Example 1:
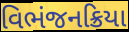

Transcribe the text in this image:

વિભંજનક્રિયા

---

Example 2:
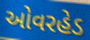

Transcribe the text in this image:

ઓવરહેડ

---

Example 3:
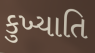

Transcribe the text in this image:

કુખ્યાતિ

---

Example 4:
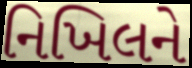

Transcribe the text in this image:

નિખિલને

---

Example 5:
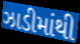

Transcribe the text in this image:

ઝાડીમાંથી